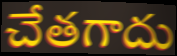
చేతగాదు